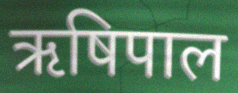
ऋषिपाल